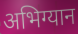
अभिग्यान